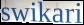
swikari